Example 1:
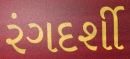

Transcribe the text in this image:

રંગદર્શી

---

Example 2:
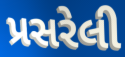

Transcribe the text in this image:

પ્રસરેલી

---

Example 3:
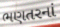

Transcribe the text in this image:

ભણતરનાં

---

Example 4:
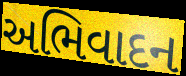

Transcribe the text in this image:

અભિવાદન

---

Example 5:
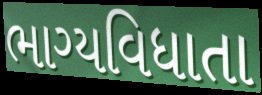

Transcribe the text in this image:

ભાગ્યવિધાતા